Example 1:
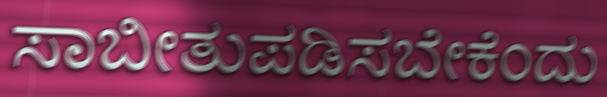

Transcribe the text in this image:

ಸಾಬೀತುಪಡಿಸಬೇಕೆಂದು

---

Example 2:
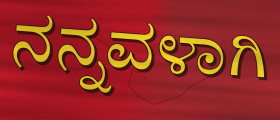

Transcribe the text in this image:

ನನ್ನವಳಾಗಿ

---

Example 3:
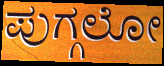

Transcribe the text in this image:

ಪುಗ್ಗಲೋ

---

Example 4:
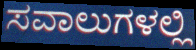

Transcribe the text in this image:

ಸವಾಲುಗಳಲ್ಲಿ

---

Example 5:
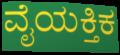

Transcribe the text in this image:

ವೈಯಕ್ತಿಕ